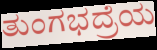
ತುಂಗಭದ್ರೆಯ